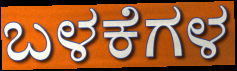
ಬಳಕೆಗಳ